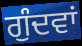
ਗੁੰਦਵਾਂ